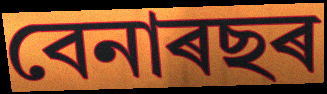
বেনাৰছৰ